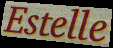
Estelle